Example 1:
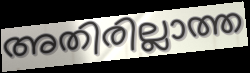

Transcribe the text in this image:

അതിരില്ലാത്ത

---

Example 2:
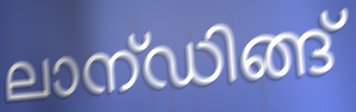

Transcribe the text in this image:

ലാന്ഡിങ്ങ്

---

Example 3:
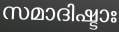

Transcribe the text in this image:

സമാദിഷ്ടാഃ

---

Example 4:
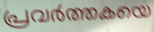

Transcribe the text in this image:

പ്രവർത്തകയെ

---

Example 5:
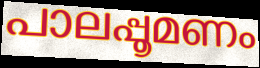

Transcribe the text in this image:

പാലപ്പൂമണം